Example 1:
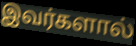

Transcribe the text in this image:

இவர்களால்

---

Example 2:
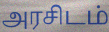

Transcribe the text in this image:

அரசிடம்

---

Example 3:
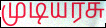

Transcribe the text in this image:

முடியரசு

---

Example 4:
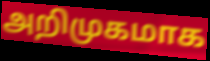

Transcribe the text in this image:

அறிமுகமாக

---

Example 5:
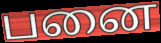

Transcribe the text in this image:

பனை